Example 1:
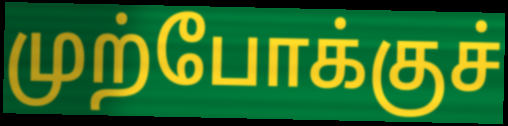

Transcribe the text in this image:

முற்போக்குச்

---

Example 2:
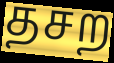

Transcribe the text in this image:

தசற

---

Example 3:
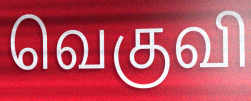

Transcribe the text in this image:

வெகுவி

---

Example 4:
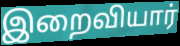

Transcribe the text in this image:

இறைவியார்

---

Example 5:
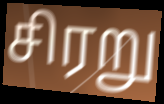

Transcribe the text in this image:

சிரறு